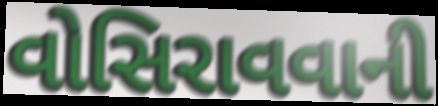
વોસિરાવવાની